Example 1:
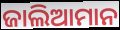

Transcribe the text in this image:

ଜାଲିଆମାନ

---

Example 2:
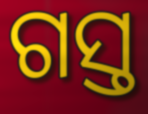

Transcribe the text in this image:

ଗସ୍ତ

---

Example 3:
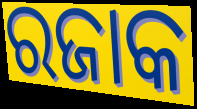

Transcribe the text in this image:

ରଜାକ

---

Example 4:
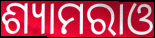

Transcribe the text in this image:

ଶ୍ୟାମରାଓ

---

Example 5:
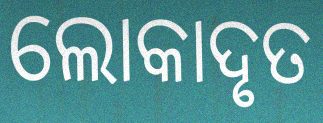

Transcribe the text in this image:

ଲୋକାଦୃତ